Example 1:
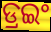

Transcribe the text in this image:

ଡ୍ରଇଂ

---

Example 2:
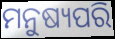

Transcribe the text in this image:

ମନୁଷ୍ୟପରି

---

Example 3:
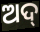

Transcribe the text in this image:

ଅଦ୍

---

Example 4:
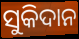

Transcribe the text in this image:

ସୁକିଦାନ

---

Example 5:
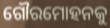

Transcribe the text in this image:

ଗୌରମୋହନକୁ